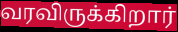
வரவிருக்கிறார்